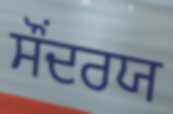
ਸੌਂਦਰਯ